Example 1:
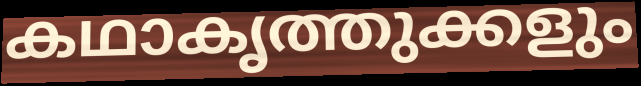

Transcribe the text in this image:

കഥാകൃത്തുക്കളും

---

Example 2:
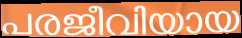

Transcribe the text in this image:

പരജീവിയായ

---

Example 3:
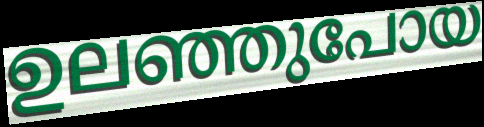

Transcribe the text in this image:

ഉലഞ്ഞുപോയ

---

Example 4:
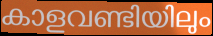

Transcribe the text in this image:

കാളവണ്ടിയിലും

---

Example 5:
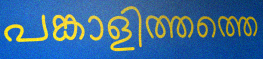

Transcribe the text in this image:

പങ്കാളിത്തത്തെ